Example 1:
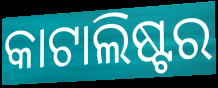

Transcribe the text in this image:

କାଟାଲିଷ୍ଟର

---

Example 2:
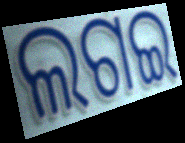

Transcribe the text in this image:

ଲଗଇ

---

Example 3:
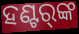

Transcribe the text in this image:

ହଣ୍ଟର୍‌ଙ୍କ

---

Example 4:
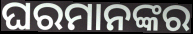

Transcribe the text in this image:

ଘରମାନଙ୍କର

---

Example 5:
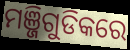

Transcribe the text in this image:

ମଞ୍ଜିଗୁଡିକରେ